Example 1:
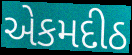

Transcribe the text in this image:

એકમદીઠ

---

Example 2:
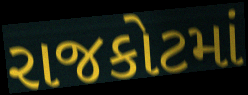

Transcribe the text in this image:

રાજકોટમાં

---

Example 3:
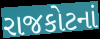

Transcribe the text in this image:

રાજકોટનાં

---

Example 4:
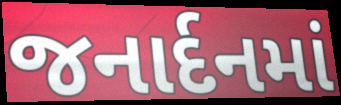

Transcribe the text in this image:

જનાર્દનમાં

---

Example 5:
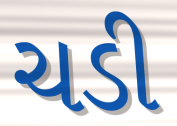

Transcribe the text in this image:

ચડી